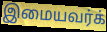
இமையவர்க்